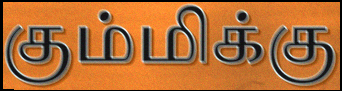
கும்மிக்கு